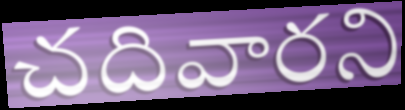
చదివారని